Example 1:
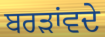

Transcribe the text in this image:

ਬਰੜਾਂਵਦੇ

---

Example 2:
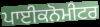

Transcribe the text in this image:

ਪਾਈਕਨੋਮੀਟਰ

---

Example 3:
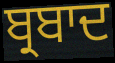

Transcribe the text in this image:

ਬ੍ਰਬਾਦ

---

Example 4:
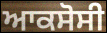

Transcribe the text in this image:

ਆਕਸੋਸੀ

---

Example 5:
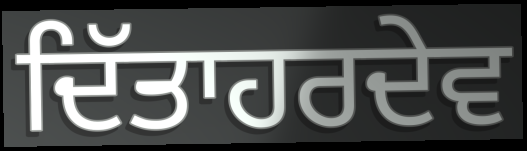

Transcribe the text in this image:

ਦਿੱਤਾਹਰਦੇਵ